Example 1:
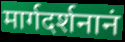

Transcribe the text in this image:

मार्गदर्शनानं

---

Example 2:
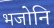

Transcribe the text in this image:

भजोनि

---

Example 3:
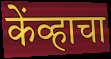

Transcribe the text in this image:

केंव्हाचा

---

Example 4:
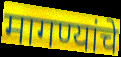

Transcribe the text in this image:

मागण्यांचे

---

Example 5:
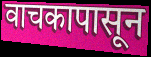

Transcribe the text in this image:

वाचकापासून